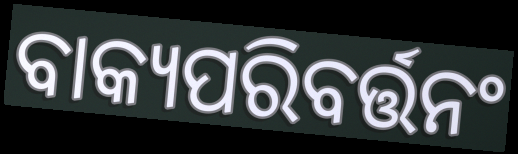
ବାକ୍ୟପରିବର୍ତ୍ତନଂ